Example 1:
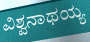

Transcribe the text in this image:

ವಿಶ್ವನಾಥಯ್ಯ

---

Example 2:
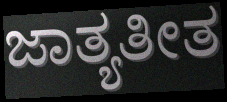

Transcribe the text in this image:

ಜಾತ್ಯತೀತ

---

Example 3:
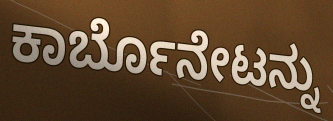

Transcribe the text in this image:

ಕಾರ್ಬೊನೇಟನ್ನು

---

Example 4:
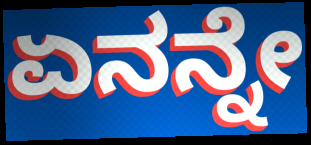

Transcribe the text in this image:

ಏನನ್ನೇ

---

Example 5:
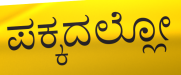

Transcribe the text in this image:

ಪಕ್ಕದಲ್ಲೋ